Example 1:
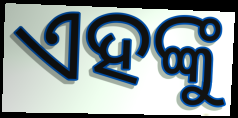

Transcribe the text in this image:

ଏହଙ୍କୁ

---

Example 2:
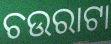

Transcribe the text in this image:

ଚଉରାଟା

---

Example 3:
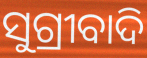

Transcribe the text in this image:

ସୁଗ୍ରୀବାଦି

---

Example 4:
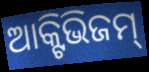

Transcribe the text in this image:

ଆକ୍ଟିଭିଜମ୍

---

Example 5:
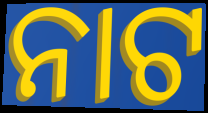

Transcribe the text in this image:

ନାଟ